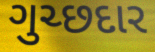
ગુચ્છદાર